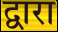
द्वारा